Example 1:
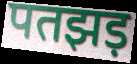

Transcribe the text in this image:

पतझड़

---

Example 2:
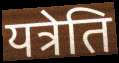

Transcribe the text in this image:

यत्रेति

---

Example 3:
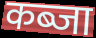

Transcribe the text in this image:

कब्जा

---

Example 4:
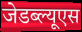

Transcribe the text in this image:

जेडब्ल्यूएस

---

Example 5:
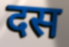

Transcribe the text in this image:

दस